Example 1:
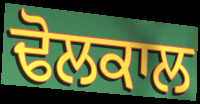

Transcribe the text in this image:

ਢੋਲਕਾਲ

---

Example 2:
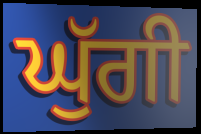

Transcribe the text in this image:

ਘੁੱਗੀ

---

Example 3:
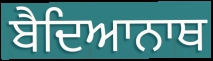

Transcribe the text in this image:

ਬੈਦਿਆਨਾਥ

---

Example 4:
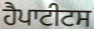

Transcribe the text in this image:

ਹੈਪਾਟੀਟਸ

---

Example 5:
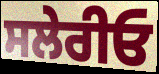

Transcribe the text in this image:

ਸਲੇਰੀਓ